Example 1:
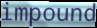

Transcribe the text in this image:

impound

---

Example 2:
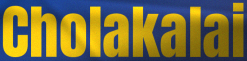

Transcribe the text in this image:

Cholakalai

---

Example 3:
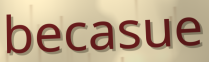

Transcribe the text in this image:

becasue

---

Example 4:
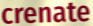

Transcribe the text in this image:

crenate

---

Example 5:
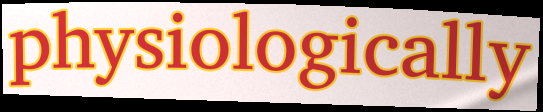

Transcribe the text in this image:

physiologically